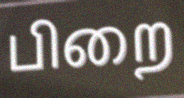
பிறை